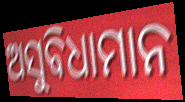
ଅସୁବିଧାମାନ